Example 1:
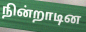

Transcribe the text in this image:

நின்றாடின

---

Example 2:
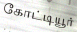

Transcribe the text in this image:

கோட்டியூர்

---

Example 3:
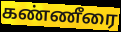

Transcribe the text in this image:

கண்ணீரை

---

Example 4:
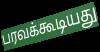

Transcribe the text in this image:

பரவக்கூடியது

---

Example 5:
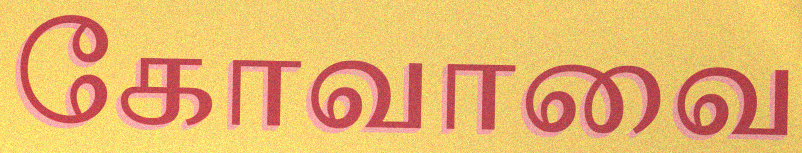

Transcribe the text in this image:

கோவாவை